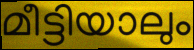
മീട്ടിയാലും